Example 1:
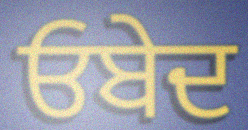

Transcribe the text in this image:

ਓਬੇਦ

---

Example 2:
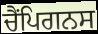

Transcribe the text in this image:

ਚੈਂਪਿਗਨਸ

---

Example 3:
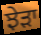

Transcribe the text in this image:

ਝੇੜਾ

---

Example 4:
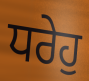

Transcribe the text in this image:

ਧਰੇਹੁ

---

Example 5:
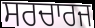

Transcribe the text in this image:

ਸਰਚਾਰਜ